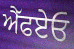
ਐੱਫਏਓ